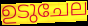
ഉടുചേല